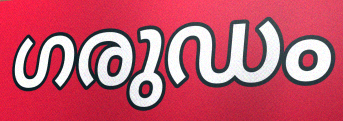
ഗരുഡം